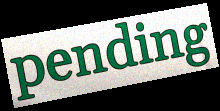
pending